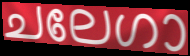
ചലേഗാ